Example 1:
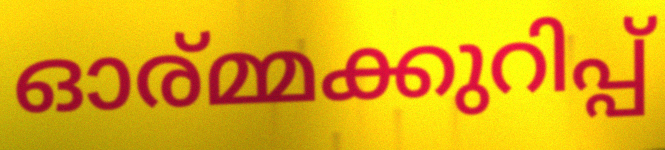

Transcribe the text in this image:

ഓര്മ്മക്കുറിപ്പ്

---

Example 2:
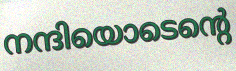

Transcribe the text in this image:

നന്ദിയൊടെന്റെ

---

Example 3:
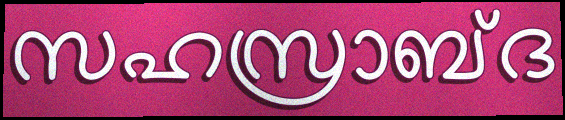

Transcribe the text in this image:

സഹസ്രാബ്ദ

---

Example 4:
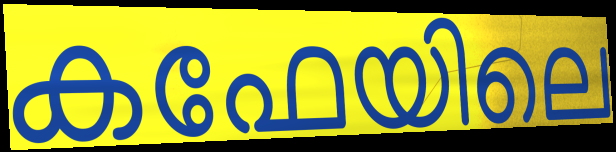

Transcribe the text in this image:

കഫേയിലെ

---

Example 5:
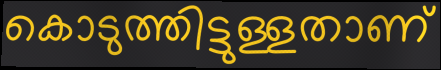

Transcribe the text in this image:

കൊടുത്തിട്ടുള്ളതാണ്